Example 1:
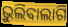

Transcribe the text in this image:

ଭୁଲିବାଲାଗି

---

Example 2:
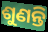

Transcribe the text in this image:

ଶୁଣନ୍ତି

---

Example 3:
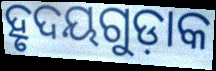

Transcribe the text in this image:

ହୃଦୟଗୁଡ଼ାକ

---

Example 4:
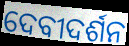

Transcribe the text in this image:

ଦେବୀଦର୍ଶନ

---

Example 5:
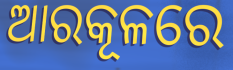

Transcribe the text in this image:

ଆରକୂଳରେ